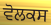
ਵੋਲਕਸ